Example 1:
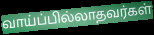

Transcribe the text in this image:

வாய்ப்பில்லாதவர்கள்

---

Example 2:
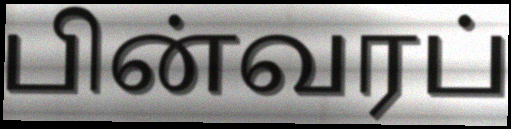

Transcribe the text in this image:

பின்வரப்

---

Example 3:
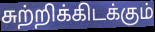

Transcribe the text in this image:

சுற்றிக்கிடக்கும்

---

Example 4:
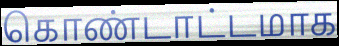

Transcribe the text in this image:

கொண்டாட்டமாக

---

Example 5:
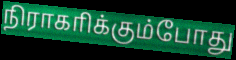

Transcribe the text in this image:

நிராகரிக்கும்போது